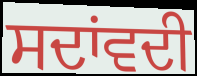
ਸਦਾਂਵਦੀ